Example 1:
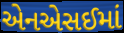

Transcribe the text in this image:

એનએસઈમાં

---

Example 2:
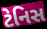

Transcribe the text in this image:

ટેનિસ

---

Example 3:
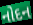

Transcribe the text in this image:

નોદન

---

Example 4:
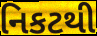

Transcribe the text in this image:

નિકટથી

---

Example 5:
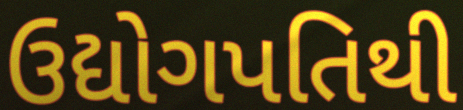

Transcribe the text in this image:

ઉદ્યોગપતિથી